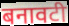
बनावटी